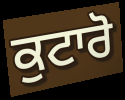
ਕੁਟਾਰੋ